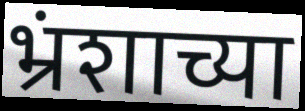
भ्रंशाच्या